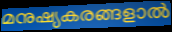
മനുഷ്യകരങ്ങളാൽ